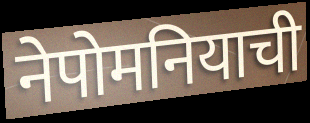
नेपोमनियाची